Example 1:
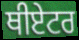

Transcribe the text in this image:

ਥੀਏਟਰ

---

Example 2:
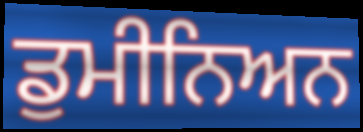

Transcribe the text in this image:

ਡੁਮੀਨਿਅਨ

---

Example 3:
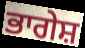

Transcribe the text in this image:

ਭਾਗੇਸ਼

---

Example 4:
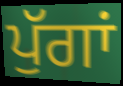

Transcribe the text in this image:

ਪੁੱਗਾਂ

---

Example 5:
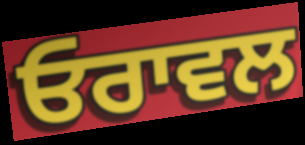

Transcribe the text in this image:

ਓਰਾਵਲ